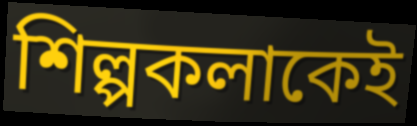
শিল্পকলাকেই